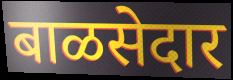
बाळसेदार